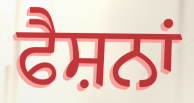
ਫੈਸ਼ਨਾਂ